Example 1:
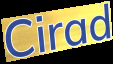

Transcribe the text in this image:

Cirad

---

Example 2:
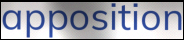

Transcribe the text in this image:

apposition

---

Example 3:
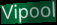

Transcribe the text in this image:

Vipool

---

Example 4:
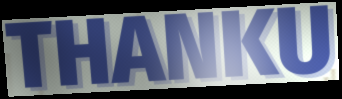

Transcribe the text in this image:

THANKU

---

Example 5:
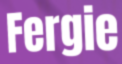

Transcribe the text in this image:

Fergie